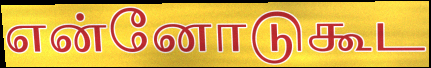
என்னோடுகூட